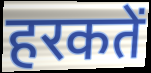
हरकतें